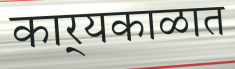
कार्यकाळात